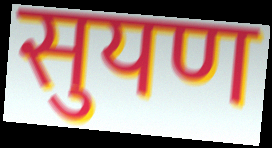
सुयण